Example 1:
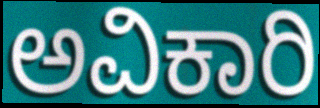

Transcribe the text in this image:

ಅವಿಕಾರಿ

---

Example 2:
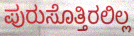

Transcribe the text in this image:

ಪುರುಸೊತ್ತಿರಲಿಲ್ಲ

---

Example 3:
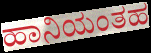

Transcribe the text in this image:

ಹಾನಿಯಂತಹ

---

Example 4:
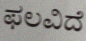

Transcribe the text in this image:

ಫಲವಿದೆ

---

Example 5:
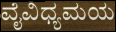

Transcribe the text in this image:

ವೈವಿಧ್ಯಮಯ